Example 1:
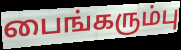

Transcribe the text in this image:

பைங்கரும்பு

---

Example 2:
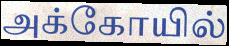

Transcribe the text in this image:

அக்கோயில்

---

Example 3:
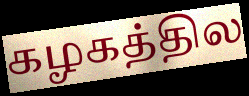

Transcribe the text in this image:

கழகத்தில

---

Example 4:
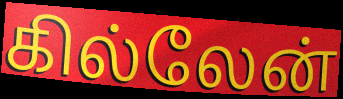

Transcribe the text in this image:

கில்லேன்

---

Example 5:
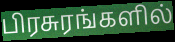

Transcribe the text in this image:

பிரசுரங்களில்